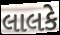
લાલકે